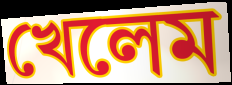
খেলেম